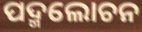
ପଦ୍ମଲୋଚନ